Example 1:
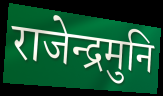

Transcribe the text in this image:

राजेन्द्रमुनि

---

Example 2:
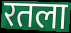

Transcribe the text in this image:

रतला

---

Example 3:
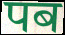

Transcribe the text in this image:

पब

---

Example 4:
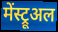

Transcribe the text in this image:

मेंस्ट्रूअल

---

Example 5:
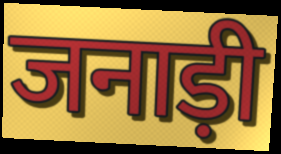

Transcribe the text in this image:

जनाड़ी